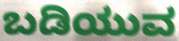
ಬಡಿಯುವ